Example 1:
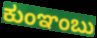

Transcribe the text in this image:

ಕುಂಞಂಬು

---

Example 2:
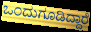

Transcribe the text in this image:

ಒಂದುಗೂಡಿದ್ದಾರೆ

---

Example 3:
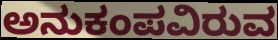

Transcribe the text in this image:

ಅನುಕಂಪವಿರುವ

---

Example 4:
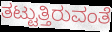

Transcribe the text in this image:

ತಟ್ಟುತ್ತಿರುವಂತೆ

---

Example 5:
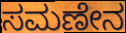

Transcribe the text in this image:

ಸಮಣೇನ